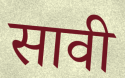
सावी